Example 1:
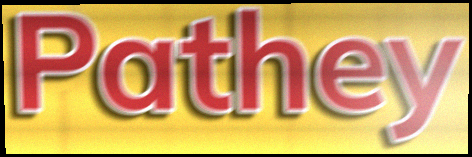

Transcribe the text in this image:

Pathey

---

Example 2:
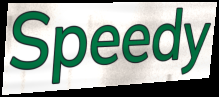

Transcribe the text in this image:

Speedy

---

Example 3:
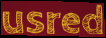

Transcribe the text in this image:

usred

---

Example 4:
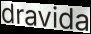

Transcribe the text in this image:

dravida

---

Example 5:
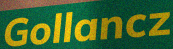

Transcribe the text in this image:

Gollancz